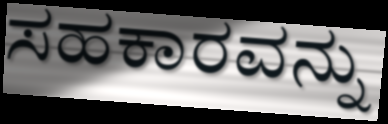
ಸಹಕಾರವನ್ನು